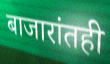
बाजारांतही